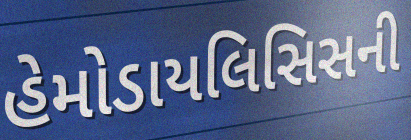
હેમોડાયલિસિસની